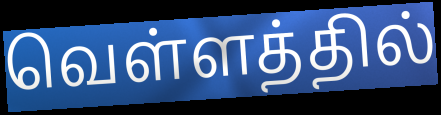
வெள்ளத்தில்